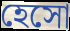
হেসো